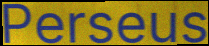
Perseus